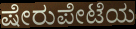
ಷೇರುಪೇಟೆಯ